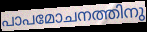
പാപമോചനത്തിനു